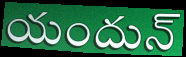
యందున్